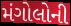
મંગોલોની